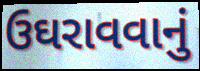
ઉઘરાવવાનું